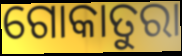
ଗୋକାତୁରା